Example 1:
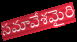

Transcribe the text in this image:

సమావేశమైరి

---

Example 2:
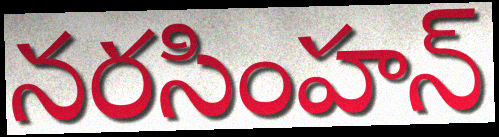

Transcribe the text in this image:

నరసింహన్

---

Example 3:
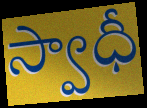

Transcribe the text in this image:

స్వాధీ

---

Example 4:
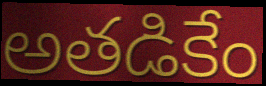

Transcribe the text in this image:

అతడికేం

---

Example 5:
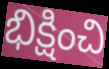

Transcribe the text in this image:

భిక్షించి